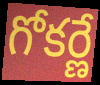
గోకర్ణే